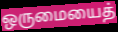
ஒருமையைத்